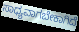
ಸಾಧ್ಯವಾಗಬೇಕಾಗಿದೆ